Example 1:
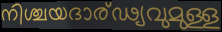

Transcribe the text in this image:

നിശ്ചയദാര്ഢ്യവുമുള്ള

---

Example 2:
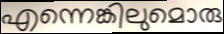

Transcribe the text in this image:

എന്നെങ്കിലുമൊരു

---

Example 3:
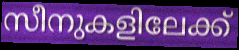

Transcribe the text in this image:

സീനുകളിലേക്ക്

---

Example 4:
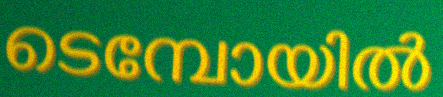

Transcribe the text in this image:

ടെമ്പോയിൽ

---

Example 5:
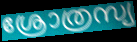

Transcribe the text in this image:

ശ്രോത്രസ്യ